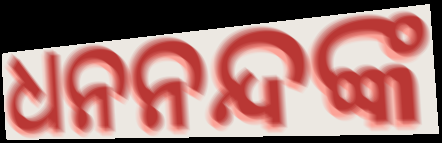
ଧନନନ୍ଦଙ୍କ